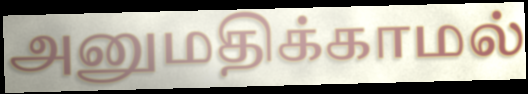
அனுமதிக்காமல்